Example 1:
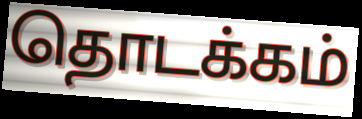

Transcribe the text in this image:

தொடக்கம்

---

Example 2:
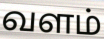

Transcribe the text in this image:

வளம்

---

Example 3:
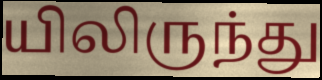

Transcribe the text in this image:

யிலிருந்து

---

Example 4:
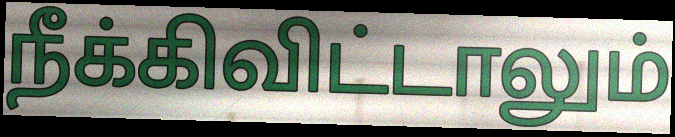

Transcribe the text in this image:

நீக்கிவிட்டாலும்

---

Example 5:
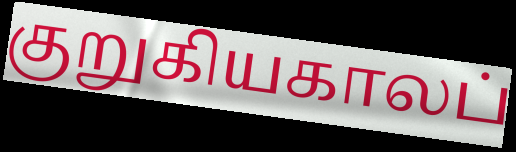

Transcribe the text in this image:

குறுகியகாலப்